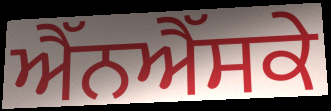
ਐੱਨਐੱਸਕੇ